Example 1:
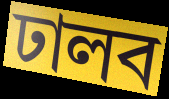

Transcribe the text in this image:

ঢালব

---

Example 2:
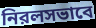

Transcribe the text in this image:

নিরলসভাবে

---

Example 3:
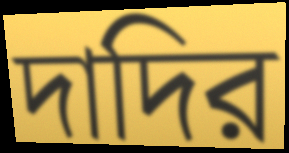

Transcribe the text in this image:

দাদির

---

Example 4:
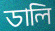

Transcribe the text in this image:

ডালি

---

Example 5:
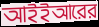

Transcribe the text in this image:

আইইআরের